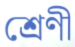
শ্ৰেণী